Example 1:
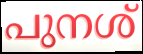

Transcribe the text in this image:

പുനശ്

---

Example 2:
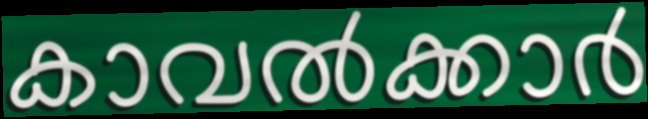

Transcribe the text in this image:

കാവൽക്കാർ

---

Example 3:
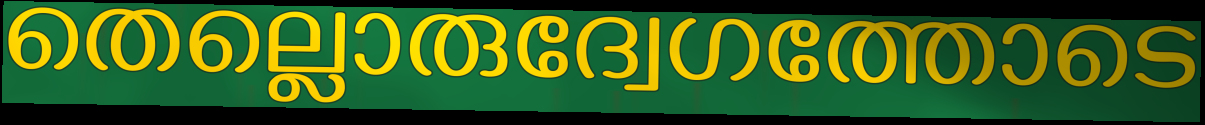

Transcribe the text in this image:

തെല്ലൊരുദ്വേഗത്തോടെ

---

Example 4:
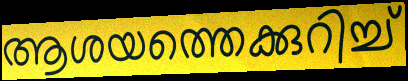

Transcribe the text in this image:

ആശയത്തെക്കുറിച്ച്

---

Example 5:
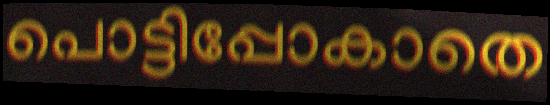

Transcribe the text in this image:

പൊട്ടിപ്പോകാതെ